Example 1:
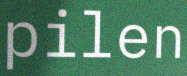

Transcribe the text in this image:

pilen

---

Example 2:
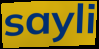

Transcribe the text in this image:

sayli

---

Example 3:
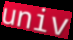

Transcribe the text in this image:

univ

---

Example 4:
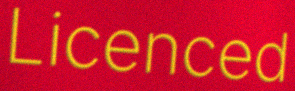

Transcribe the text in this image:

Licenced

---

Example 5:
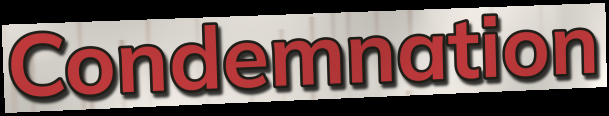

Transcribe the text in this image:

Condemnation